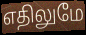
எதிலுமே